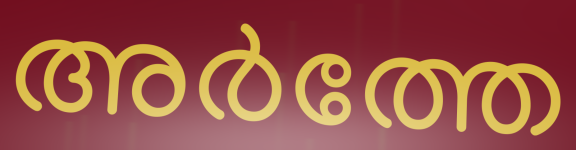
അർത്തേ